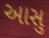
આસુ